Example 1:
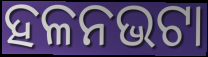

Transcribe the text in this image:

ହଳନଭଟା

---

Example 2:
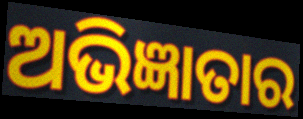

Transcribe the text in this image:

ଅଭିଜ୍ଞାତାର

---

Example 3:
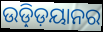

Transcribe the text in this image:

ଉଡ଼୍ଡ଼ିୟାନର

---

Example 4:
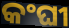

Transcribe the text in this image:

କଂଘୀ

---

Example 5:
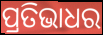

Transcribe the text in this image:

ପ୍ରତିଭାଧର